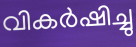
വികർഷിച്ചു